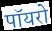
पॉयरो